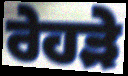
ਰੇਹੜੇ